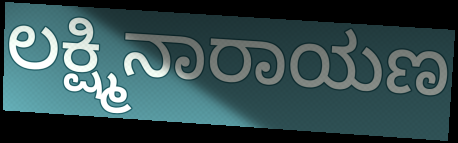
ಲಕ್ಷ್ಮಿನಾರಾಯಣ